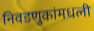
निवडणुकांमधली